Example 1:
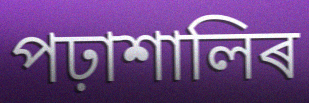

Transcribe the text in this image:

পঢ়াশালিৰ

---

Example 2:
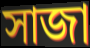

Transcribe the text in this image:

সাজা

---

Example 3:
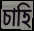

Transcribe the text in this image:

চাহি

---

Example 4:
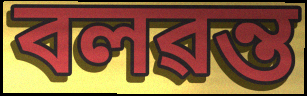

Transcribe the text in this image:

বলৱন্ত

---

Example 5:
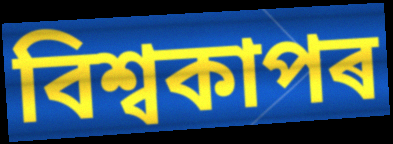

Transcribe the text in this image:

বিশ্বকাপৰ